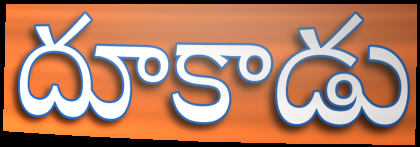
దూకాడు